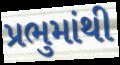
પ્રભુમાંથી